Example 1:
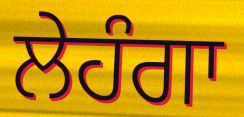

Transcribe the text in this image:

ਲੇਹੰਗਾ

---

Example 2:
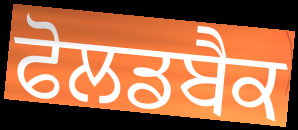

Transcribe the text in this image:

ਫੋਲਡਬੈਕ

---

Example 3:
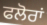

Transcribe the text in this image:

ਫਲੋਰਾਂ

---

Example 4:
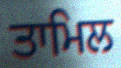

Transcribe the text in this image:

ਤਾਮਿਲ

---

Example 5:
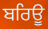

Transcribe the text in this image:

ਬਰਿਊ